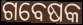
ଗବେଷକ